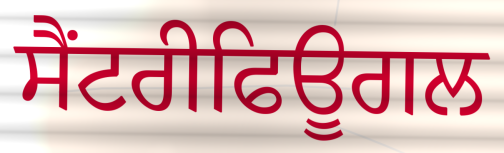
ਸੈਂਟਰੀਫਿਊਗਲ